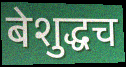
बेशुद्धच